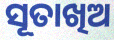
ସୂତାଖିଅ